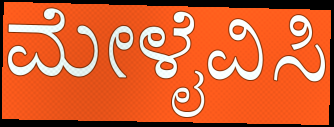
ಮೇಳೈವಿಸಿ